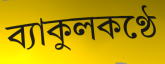
ব্যাকুলকণ্ঠে